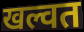
खल्वत